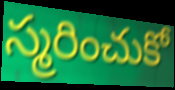
స్మరించుకో